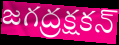
జగద్రక్షకన్